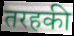
तरहकी